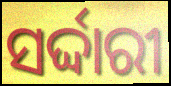
ସର୍ଦ୍ଦାରୀ